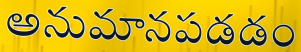
అనుమానపడడం